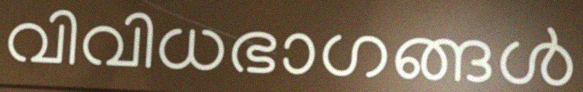
വിവിധഭാഗങ്ങൾ